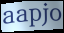
aapjo